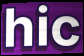
hic